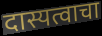
दास्यत्वाचा